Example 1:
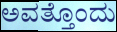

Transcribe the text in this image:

ಅವತ್ತೊಂದು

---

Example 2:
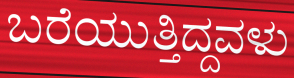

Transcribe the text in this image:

ಬರೆಯುತ್ತಿದ್ದವಳು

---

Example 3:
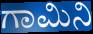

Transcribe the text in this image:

ಗಾಮಿನಿ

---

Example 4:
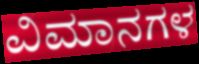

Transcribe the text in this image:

ವಿಮಾನಗಳ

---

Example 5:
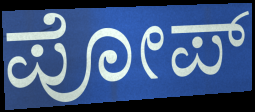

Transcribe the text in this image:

ಪೋಪ್